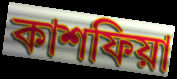
কাশফিয়া